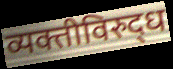
व्यक्तीविरुद्ध